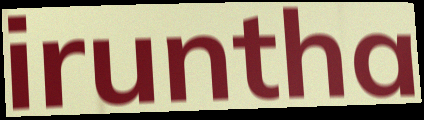
iruntha